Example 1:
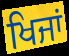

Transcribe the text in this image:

ਖਿਜਾਂ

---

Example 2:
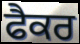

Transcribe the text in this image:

ਫੈਕਰ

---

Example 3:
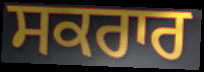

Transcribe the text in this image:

ਸਕਰਾਰ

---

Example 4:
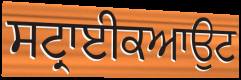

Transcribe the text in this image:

ਸਟ੍ਰਾਈਕਆਉਟ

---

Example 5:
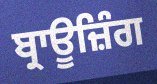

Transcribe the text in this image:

ਬ੍ਰਾਊਜ਼ਿੰਗ